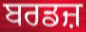
ਬਰਡਜ਼